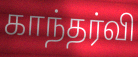
காந்தர்வி